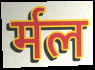
र्मल